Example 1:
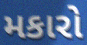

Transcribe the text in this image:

મકારો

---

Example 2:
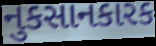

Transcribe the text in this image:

નુકસાનકારક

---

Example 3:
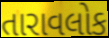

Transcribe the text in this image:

તારાવલોક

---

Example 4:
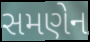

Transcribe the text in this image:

સમણેન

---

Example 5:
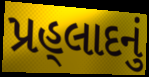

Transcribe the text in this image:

પ્રહ્‌લાદનું